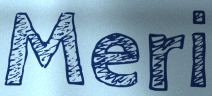
Meri